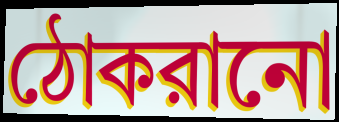
ঠোকরানো